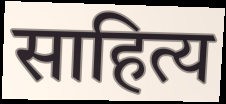
साहित्य